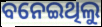
ବନେଇଥିଲୁ